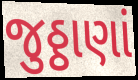
જુઠ્ઠાણાં